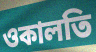
ওকালতি